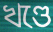
খণ্ডে